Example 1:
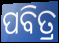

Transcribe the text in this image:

ପବିତ୍ର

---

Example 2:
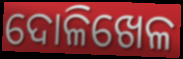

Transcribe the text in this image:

ଦୋଳିଖେଳ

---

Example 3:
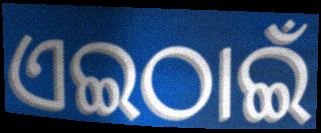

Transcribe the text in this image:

ଏଇଠାଇଁ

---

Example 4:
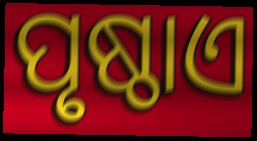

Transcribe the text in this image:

ପୃଷ୍ଠାଏ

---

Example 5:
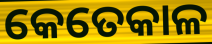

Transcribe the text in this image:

କେତେକାଳ